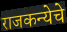
राजकन्येचे